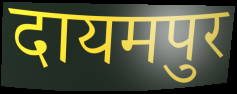
दायमपुर